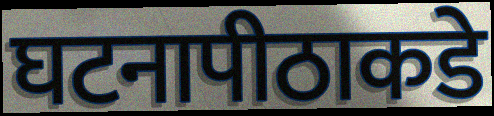
घटनापीठाकडे